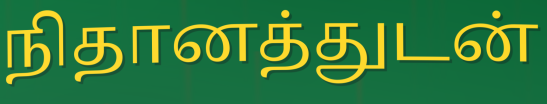
நிதானத்துடன்